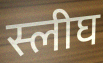
स्लीघ